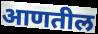
आणतील